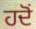
ਹਦੋਂ